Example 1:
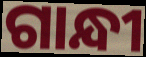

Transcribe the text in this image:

ଗାନ୍ଧୀ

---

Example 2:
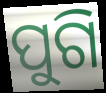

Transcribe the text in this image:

ପୁଗି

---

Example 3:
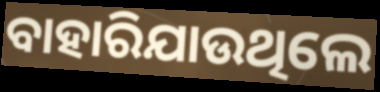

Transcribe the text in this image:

ବାହାରିଯାଉଥିଲେ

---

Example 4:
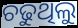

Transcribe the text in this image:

ଚଢୁଥିଲୁ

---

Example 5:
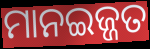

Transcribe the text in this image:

ମାନଇଜ୍ଜତ